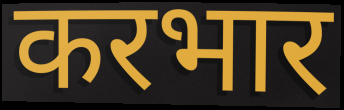
करभार